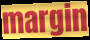
margin